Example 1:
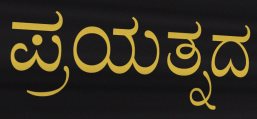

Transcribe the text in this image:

ಪ್ರಯತ್ನದ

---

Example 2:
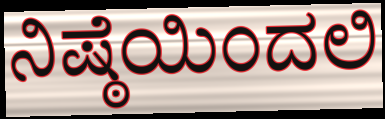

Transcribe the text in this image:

ನಿಷ್ಠೆಯಿಂದಲಿ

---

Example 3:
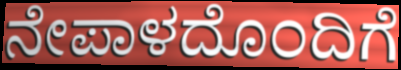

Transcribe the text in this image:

ನೇಪಾಳದೊಂದಿಗೆ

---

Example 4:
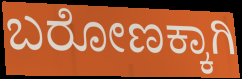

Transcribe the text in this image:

ಬರೋಣಕ್ಕಾಗಿ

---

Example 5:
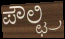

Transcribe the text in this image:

ಪೌಲ್ಟ್ರಿ